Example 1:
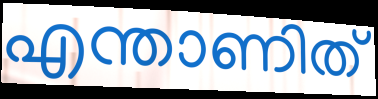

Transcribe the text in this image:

എന്താണിത്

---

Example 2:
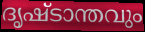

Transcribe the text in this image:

ദൃഷ്ടാന്തവും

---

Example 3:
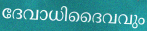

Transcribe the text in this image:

ദേവാധിദൈവവും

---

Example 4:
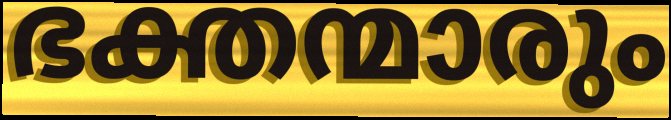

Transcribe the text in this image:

ഭക്തന്മാരും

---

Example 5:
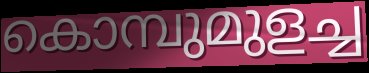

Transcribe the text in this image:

കൊമ്പുമുളച്ച